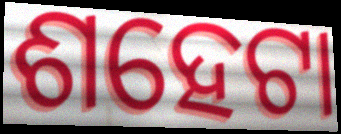
ଶହେଟା